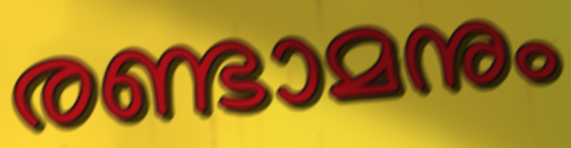
രണ്ടാമനും